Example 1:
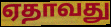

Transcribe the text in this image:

ஏதாவது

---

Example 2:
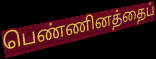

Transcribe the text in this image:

பெண்ணினத்தைப்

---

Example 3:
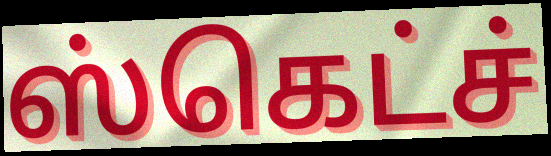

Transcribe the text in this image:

ஸ்கெட்ச்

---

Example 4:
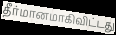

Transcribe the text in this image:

தீர்மானமாகிவிட்டது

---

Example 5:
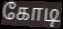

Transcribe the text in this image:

கோடி